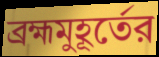
ব্রহ্মমুহূর্তের